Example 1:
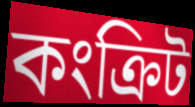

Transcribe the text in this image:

কংক্রিট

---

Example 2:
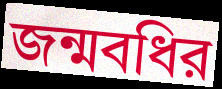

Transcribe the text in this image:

জন্মবধির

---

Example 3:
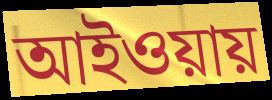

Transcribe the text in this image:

আইওয়ায়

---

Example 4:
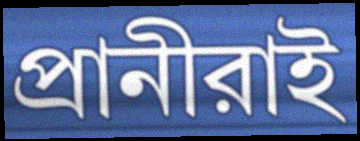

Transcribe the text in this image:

প্রানীরাই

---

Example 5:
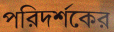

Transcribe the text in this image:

পরিদর্শকের